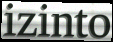
izinto